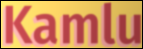
Kamlu